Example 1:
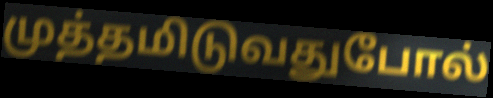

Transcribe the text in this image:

முத்தமிடுவதுபோல்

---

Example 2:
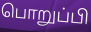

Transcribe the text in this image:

பொறுப்பி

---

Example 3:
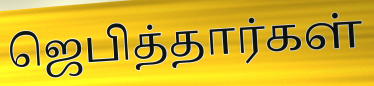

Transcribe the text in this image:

ஜெபித்தார்கள்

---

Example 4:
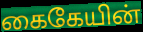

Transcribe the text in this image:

கைகேயின்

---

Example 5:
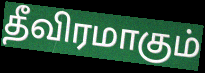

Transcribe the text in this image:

தீவிரமாகும்